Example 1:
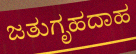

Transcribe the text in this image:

ಜತುಗೃಹದಾಹ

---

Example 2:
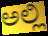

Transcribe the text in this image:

ಅಲ್ಲಿ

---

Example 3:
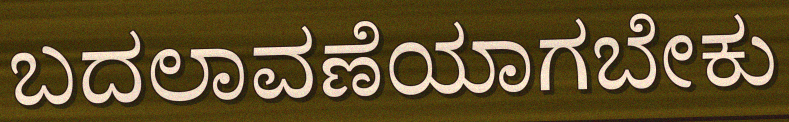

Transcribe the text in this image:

ಬದಲಾವಣೆಯಾಗಬೇಕು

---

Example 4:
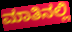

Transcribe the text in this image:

ಮಾತಿನಲ್ಲಿ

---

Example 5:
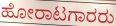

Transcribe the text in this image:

ಹೋರಾಟಗಾರರು